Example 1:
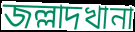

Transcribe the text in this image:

জল্লাদখানা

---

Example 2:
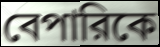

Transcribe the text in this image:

বেপারিকে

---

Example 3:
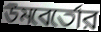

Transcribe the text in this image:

উমবের্তোর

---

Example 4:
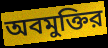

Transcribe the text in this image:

অবমুক্তির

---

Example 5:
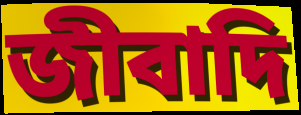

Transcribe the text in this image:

জীবাদি